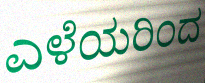
ಎಳೆಯರಿಂದ